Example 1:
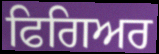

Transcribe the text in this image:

ਫਿਗਿਅਰ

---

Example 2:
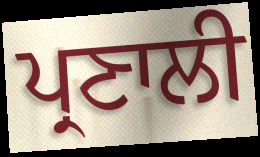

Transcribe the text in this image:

ਪ੍ਰਣਾਲੀ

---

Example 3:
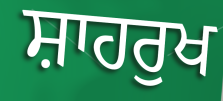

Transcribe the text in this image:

ਸ਼ਾਹਰੁਖ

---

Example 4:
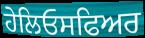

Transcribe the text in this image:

ਹੇਲਿਓਸਫਿਅਰ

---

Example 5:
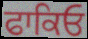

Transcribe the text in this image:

ਫਾਕਿਓ